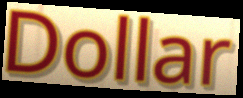
Dollar